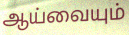
ஆய்வையும்